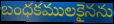
బంధకములకైనను